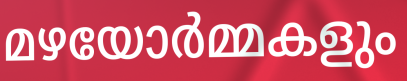
മഴയോർമ്മകളും